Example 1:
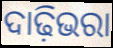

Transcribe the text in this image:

ଦାଢ଼ିଭରା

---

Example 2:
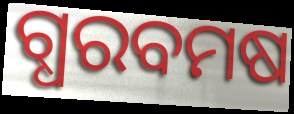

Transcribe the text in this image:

ଗ୍ଧରବମଷ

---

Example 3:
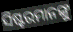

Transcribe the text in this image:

ସିଷ୍ଟରମାନଙ୍କୁ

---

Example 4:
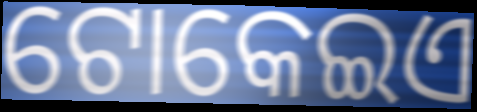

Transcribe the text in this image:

ଟୋକେଇଏ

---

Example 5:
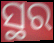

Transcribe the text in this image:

ସ୍ଥର